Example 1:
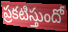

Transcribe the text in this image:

ప్రకటిస్తుందో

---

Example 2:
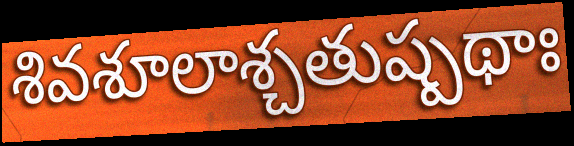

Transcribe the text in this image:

శివశూలాశ్చతుష్పథాః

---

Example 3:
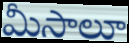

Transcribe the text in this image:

మీసాలూ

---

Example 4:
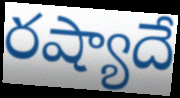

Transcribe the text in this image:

రష్యాదే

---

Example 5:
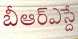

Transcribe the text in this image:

బీఆర్ఎస్దే